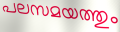
പലസമയത്തും